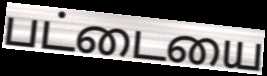
பட்டையை